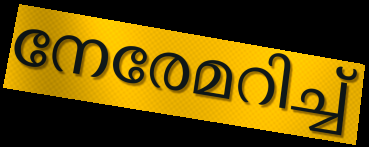
നേരേമറിച്ച്